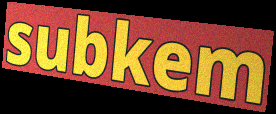
subkem